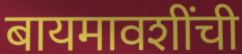
बायमावशींची